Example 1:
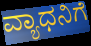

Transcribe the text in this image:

ವ್ಯಾಧನಿಗೆ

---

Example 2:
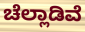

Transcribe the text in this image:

ಚೆಲ್ಲಾಡಿವೆ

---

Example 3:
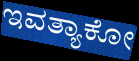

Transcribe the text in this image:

ಇವತ್ಯಾಕೋ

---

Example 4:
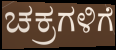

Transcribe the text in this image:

ಚಕ್ರಗಳಿಗೆ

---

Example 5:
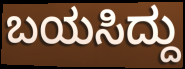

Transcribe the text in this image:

ಬಯಸಿದ್ದು